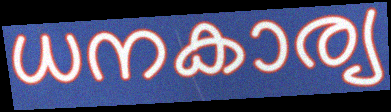
ധനകാര്യ